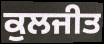
ਕੁਲਜੀਤ